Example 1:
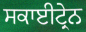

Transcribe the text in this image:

ਸਕਾਈਟ੍ਰੇਨ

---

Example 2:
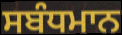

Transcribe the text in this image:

ਸਬੰਧਮਾਨ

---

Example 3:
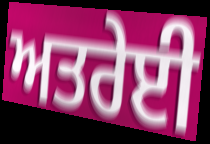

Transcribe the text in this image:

ਅਤਰੇਈ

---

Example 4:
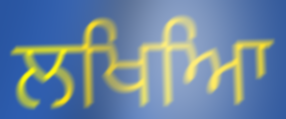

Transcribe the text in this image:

ਲਖਿਆਿ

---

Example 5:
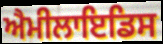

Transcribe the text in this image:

ਐਮੀਲਾਇਡਿਸ